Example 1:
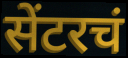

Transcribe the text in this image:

सेंटरचं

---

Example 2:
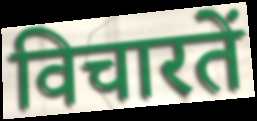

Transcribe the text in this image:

विचारतें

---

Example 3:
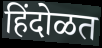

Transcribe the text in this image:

हिंदोळत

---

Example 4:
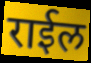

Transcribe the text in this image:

राईल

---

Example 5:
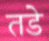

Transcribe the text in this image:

तडे